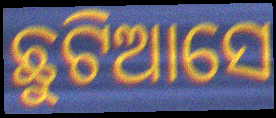
ଛୁଟିଆସେ